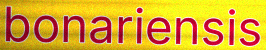
bonariensis